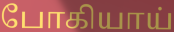
போகியாய்